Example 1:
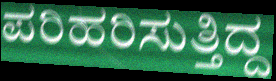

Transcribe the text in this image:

ಪರಿಹರಿಸುತ್ತಿದ್ದ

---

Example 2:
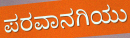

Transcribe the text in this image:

ಪರವಾನಗಿಯು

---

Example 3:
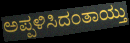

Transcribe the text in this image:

ಅಪ್ಪಳಿಸಿದಂತಾಯ್ತು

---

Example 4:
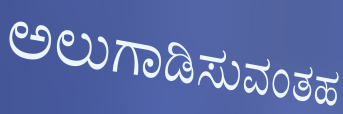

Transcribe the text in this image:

ಅಲುಗಾಡಿಸುವಂತಹ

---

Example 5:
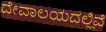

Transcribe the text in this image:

ದೇವಾಲಯದಲ್ಲಿವೆ